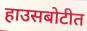
हाउसबोटीत